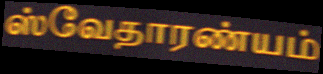
ஸ்வேதாரண்யம்